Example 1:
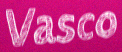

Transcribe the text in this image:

Vasco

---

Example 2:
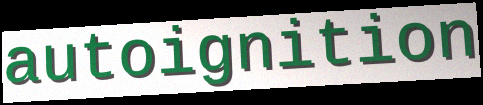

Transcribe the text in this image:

autoignition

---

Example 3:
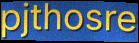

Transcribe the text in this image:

pjthosre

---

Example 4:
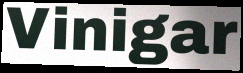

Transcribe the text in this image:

Vinigar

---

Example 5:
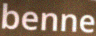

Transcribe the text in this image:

benne